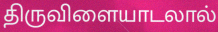
திருவிளையாடலால்